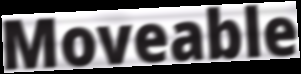
Moveable